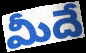
మీదే